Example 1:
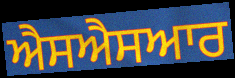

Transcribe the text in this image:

ਐਸਐਸਆਰ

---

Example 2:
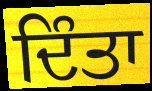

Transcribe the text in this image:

ਦਿੰਤਾ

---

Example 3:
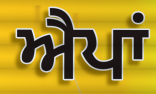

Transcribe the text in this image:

ਐਪਾਂ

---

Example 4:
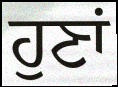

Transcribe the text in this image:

ਹੁਣਾਂ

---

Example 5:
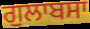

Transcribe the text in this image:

ਗੁਲਾਬਸਾ